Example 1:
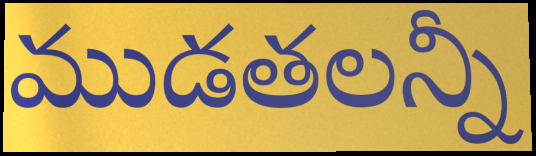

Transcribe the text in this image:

ముడతలన్నీ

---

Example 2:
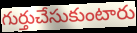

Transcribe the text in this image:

గుర్తుచేసుకుంటారు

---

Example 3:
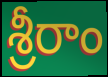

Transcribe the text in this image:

శ్రీరాం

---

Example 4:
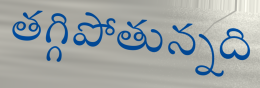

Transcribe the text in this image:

తగ్గిపోతున్నది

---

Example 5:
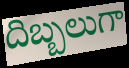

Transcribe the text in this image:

దిబ్బలుగా